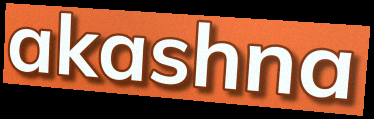
akashna